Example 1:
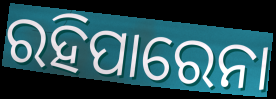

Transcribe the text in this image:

ରହିପାରେନା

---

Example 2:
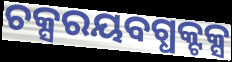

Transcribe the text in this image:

ଚକ୍ସରୟବଗ୍ଧକ୍ଟକ୍ସ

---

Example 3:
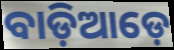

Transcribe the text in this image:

ବାଡ଼ିଆଡ଼େ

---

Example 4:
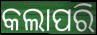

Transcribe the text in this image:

କଲାପରି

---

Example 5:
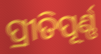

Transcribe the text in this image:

ପ୍ରୀତିପୂର୍ଣ୍ଣ